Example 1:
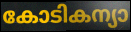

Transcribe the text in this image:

കോടികന്യാ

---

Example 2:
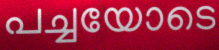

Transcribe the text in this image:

പച്ചയോടെ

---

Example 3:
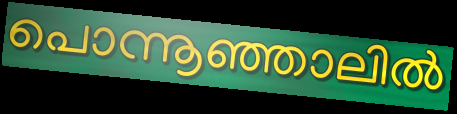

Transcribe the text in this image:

പൊന്നൂഞ്ഞാലിൽ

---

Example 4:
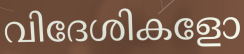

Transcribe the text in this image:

വിദേശികളോ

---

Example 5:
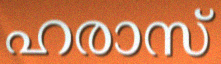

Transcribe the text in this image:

ഹരാസ്